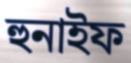
হুনাইফ